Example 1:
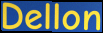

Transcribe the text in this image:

Dellon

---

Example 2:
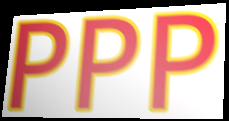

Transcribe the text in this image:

PPP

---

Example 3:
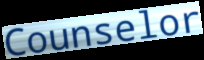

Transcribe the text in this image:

Counselor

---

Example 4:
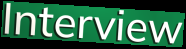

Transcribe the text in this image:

Interview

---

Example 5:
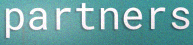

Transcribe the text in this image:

partners